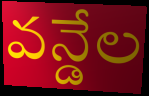
వన్డేల